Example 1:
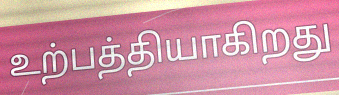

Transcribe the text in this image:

உற்பத்தியாகிறது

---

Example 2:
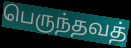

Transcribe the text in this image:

பெருந்தவத்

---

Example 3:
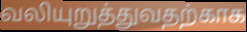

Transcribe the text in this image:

வலியுறுத்துவதற்காக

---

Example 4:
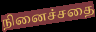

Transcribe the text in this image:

நினைச்சதை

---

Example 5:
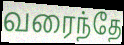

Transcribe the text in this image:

வரைந்தே